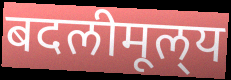
बदलीमूल्य